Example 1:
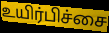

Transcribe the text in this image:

உயிர்பிச்சை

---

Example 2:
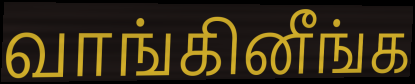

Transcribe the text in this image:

வாங்கினீங்க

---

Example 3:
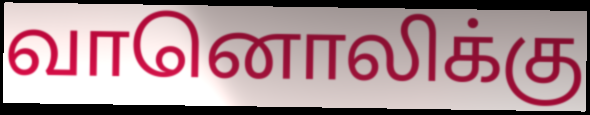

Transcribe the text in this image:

வானொலிக்கு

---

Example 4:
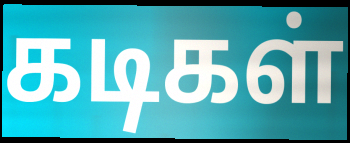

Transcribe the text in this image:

கடிகள்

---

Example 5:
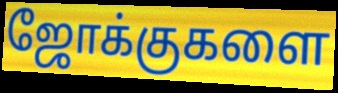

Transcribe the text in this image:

ஜோக்குகளை